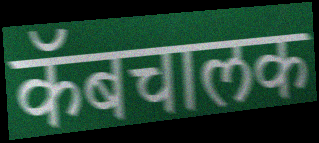
कॅबचालक